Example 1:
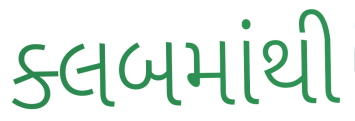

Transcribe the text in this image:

ક્લબમાંથી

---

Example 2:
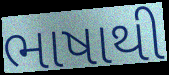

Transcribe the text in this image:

ભાષાથી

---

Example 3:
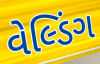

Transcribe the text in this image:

વેલ્ડિંગ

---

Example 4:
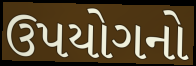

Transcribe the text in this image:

ઉપયોગનો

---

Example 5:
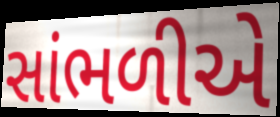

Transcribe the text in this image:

સાંભળીએ